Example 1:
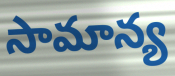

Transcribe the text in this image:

సామాన్య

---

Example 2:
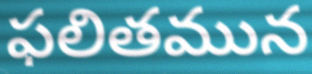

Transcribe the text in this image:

ఫలితమున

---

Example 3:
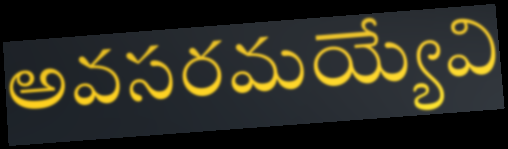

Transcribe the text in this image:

అవసరమయ్యేవి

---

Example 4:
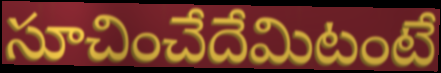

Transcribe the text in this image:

సూచించేదేమిటంటే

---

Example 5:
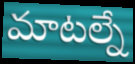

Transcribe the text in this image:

మాటల్నే